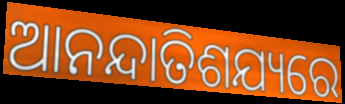
ଆନନ୍ଦାତିଶଯ୍ୟରେ